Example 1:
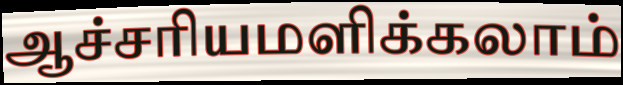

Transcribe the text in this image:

ஆச்சரியமளிக்கலாம்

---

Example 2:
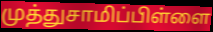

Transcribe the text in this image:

முத்துசாமிப்பிள்ளை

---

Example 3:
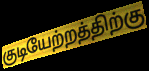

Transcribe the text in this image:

குடியேற்றத்திற்கு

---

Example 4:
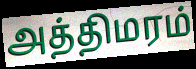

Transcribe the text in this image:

அத்திமரம்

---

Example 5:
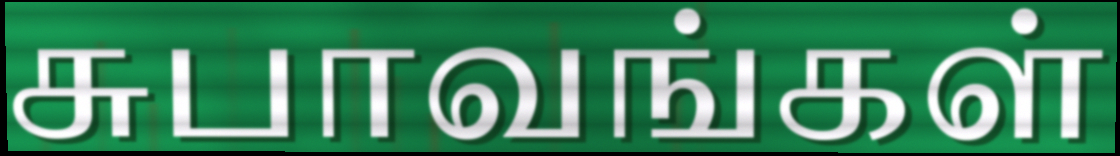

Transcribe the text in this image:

சுபாவங்கள்